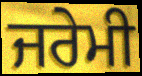
ਜਰੇਮੀ